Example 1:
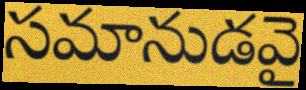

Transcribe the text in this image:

సమానుడవై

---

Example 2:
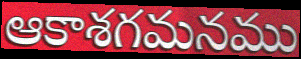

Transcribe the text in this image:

ఆకాశగమనము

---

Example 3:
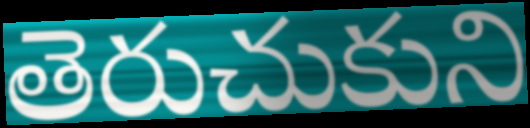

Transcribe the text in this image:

తెరుచుకుని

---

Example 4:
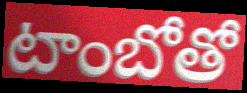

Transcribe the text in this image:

టాంబోతో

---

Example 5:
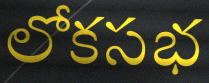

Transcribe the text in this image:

లోకసభ